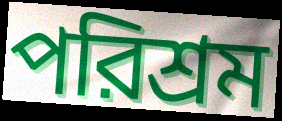
পরিশ্রম